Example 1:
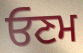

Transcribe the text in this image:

ਓਣਮ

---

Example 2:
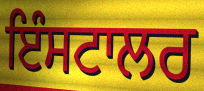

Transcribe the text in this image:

ਇੰਸਟਾਲਰ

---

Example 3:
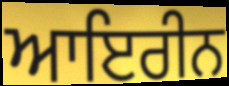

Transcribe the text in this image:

ਆਇਰੀਨ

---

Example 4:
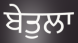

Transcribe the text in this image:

ਬੇਤੁਲਾ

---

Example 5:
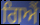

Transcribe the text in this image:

ਗਿਐਂ